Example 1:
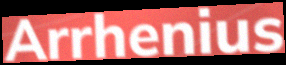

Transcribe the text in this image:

Arrhenius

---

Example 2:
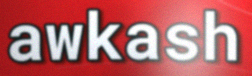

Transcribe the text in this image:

awkash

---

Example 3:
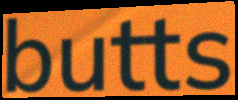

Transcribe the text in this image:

butts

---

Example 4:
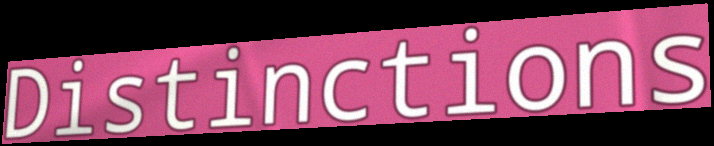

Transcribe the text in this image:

Distinctions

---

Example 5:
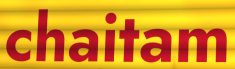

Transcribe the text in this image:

chaitam